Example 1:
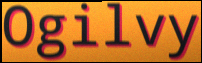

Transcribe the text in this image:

Ogilvy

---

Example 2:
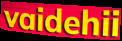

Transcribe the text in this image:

vaidehii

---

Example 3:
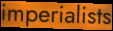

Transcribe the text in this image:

imperialists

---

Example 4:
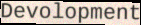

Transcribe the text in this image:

Devolopment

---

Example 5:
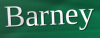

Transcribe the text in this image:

Barney